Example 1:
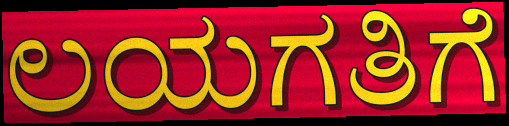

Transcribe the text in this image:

ಲಯಗತಿಗೆ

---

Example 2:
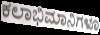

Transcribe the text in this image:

ಕಲಾಭಿಮಾನಿಗಳೂ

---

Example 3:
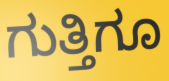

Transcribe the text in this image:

ಗುತ್ತಿಗೂ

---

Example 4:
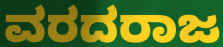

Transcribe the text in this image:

ವರದರಾಜ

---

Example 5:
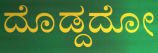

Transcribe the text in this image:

ದೊಡ್ದದೋ